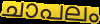
ചാപലം